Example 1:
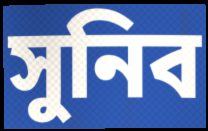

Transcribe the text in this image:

সুনিব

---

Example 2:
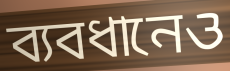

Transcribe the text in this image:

ব্যবধানেও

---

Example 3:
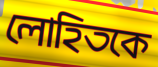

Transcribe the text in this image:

লোহিতকে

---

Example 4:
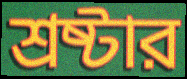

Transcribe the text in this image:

শ্রষ্টার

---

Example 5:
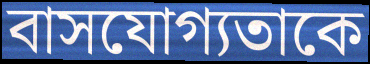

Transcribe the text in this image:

বাসযোগ্যতাকে